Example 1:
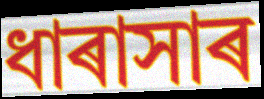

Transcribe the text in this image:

ধাৰাসাৰ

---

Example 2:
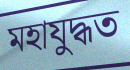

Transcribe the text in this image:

মহাযুদ্ধত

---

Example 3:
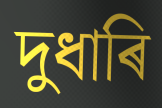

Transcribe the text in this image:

দুধাৰি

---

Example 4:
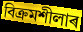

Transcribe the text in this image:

বিক্ৰমশীলাৰ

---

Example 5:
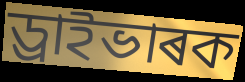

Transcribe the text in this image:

ড্ৰাইভাৰক